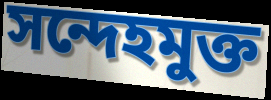
সন্দেহমুক্ত